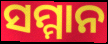
ସମ୍ମାନ